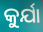
କୁର୍ଯା